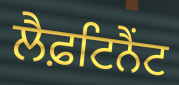
ਲੈਫ਼ਟਿਨੈਂਟ